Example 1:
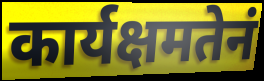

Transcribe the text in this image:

कार्यक्षमतेनं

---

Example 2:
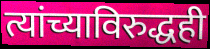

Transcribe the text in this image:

त्यांच्याविरुद्धही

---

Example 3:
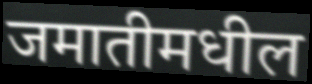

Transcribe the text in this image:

जमातीमधील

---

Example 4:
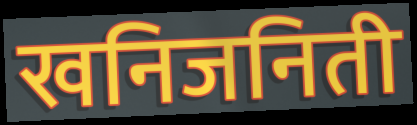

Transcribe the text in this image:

खनिजनिती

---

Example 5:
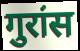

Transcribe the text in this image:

गुरांस